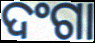
ଦଂଗା